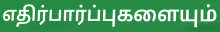
எதிர்பார்ப்புகளையும்